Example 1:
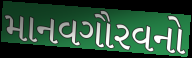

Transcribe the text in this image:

માનવગૌરવનો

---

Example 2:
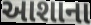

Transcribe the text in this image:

આશાના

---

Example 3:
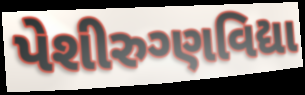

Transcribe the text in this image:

પેશીરુગ્ણવિદ્યા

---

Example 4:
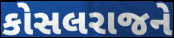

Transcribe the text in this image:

કોસલરાજને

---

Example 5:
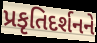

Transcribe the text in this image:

પ્રકૃતિદર્શનને